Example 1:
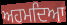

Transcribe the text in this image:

ਅਹਮਦਿਆ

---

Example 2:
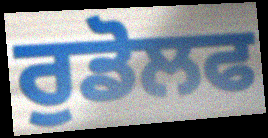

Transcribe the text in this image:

ਰੁਡੋਲਫ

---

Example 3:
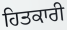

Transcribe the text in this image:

ਹਿਤਕਾਰੀ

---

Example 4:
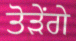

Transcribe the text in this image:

ਤੋੜੇਂਗੇ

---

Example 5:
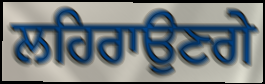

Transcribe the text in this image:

ਲਹਿਰਾਉਣਗੇ